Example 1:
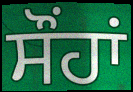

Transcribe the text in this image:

ਸੌਂਹਾਂ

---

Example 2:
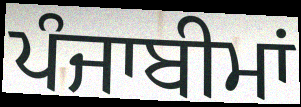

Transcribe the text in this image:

ਪੰਜਾਬੀਮਾਂ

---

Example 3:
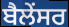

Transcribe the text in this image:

ਬੈਲੇਂਸਰ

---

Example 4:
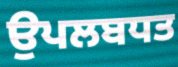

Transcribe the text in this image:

ਉਪਲਬਧਤ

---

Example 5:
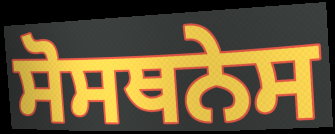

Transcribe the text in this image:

ਸੋਸਥਨੇਸ